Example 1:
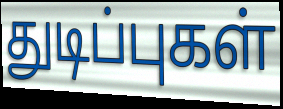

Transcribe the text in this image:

துடிப்புகள்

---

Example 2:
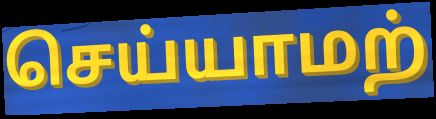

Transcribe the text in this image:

செய்யாமற்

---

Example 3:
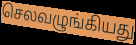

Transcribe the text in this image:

செலவழுங்கியது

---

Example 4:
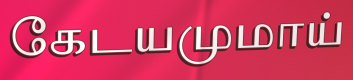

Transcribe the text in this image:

கேடயமுமாய்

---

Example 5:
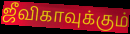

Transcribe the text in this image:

ஜீவிகாவுக்கும்